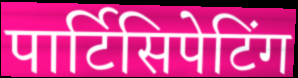
पार्टिसिपेटिंग